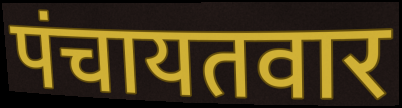
पंचायतवार